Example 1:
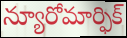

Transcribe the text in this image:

న్యూరోమార్ఫిక్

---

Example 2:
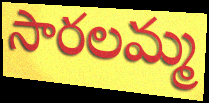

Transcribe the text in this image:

సారలమ్మ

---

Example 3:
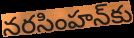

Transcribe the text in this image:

నరసింహన్‌కు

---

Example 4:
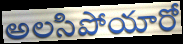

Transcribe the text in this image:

అలసిపోయారో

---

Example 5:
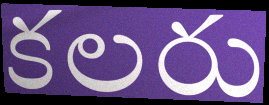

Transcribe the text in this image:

కలరు